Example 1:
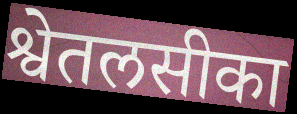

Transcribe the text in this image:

श्वेतलसीका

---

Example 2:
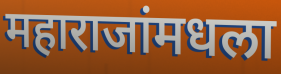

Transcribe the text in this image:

महाराजांमधला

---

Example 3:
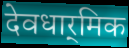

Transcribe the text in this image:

देवधार्मिक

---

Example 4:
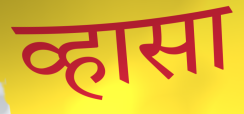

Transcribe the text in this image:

व्हासा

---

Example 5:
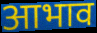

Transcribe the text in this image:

आभाव